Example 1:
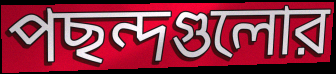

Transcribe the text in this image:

পছন্দগুলোর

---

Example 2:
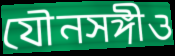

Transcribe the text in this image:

যৌনসঙ্গীও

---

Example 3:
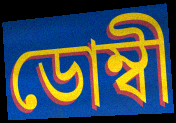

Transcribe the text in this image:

ডোম্বী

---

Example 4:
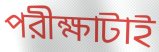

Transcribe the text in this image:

পরীক্ষাটাই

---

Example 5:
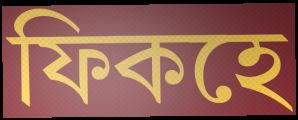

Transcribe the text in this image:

ফিকহে